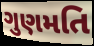
ગુણમતિ